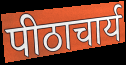
पीठाचार्य